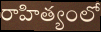
రాహిత్యంలో